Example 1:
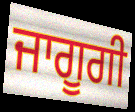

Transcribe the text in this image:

ਜਾਗੂਗੀ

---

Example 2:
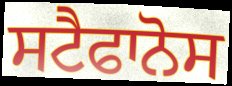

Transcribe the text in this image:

ਸਟੈਫਾਨੋਸ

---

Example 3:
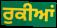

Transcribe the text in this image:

ਰੁਕੀਆਂ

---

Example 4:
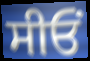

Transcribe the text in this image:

ਸੀਓਂ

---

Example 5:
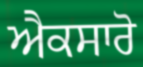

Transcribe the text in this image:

ਐਕਸਾਰੋ